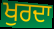
ਖੁਰਦਾ